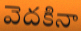
వెదకినా